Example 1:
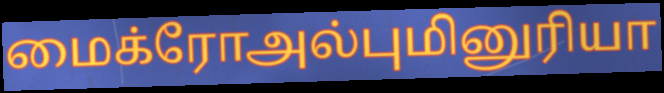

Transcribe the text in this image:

மைக்ரோஅல்புமினுரியா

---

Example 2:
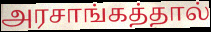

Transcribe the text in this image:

அரசாங்கத்தால்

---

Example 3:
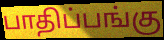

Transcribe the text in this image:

பாதிப்பங்கு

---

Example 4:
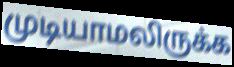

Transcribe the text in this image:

முடியாமலிருக்க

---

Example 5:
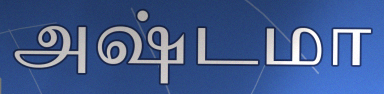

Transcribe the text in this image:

அஷ்டமா